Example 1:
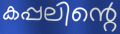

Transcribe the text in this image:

കപ്പലിന്റെ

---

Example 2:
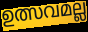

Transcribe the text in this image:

ഉത്സവമല്ല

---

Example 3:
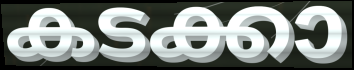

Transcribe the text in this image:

കടക്കാ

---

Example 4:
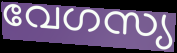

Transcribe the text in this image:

വേഗസ്യ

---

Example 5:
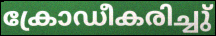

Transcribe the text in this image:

ക്രോഡീകരിച്ചു്